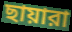
ছায়ারা